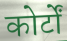
कोर्टों